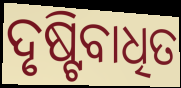
ଦୃଷ୍ଟିବାଧିତ